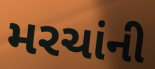
મરચાંની